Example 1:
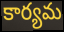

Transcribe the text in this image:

కార్యమ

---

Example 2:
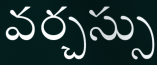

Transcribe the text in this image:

వర్చస్సు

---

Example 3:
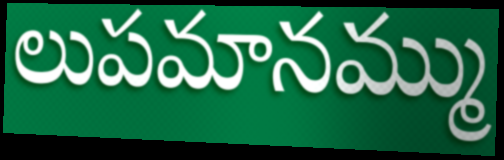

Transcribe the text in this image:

లుపమానమ్ము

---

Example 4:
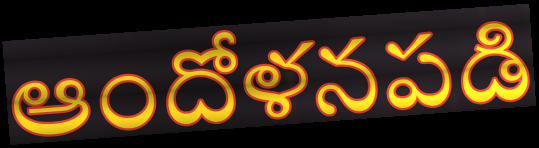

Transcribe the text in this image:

ఆందోళనపడి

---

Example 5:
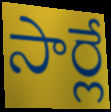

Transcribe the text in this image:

సార్లే